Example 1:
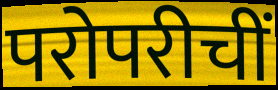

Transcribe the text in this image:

परोपरीचीं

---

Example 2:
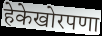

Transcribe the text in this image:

हेकेखोरपणा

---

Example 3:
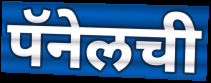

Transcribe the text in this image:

पॅनेलची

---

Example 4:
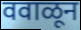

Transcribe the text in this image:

ववाळून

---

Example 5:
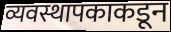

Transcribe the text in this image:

व्यवस्थापकाकडून